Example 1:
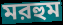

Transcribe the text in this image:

মরহুম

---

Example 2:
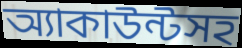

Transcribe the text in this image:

অ্যাকাউন্টসহ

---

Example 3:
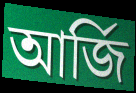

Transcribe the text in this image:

আর্জি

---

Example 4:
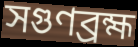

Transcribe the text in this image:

সগুণব্রহ্ম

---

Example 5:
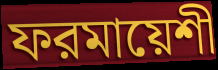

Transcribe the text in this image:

ফরমায়েশী